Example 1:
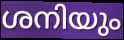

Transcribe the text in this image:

ശനിയും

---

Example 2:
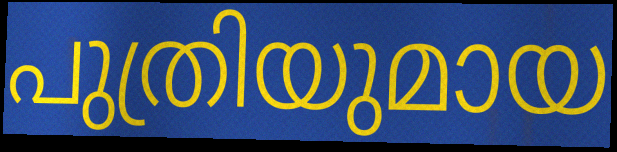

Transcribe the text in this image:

പുത്രിയുമായ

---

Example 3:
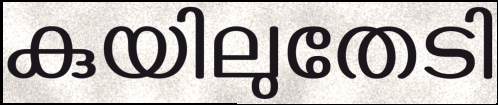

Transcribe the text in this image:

കുയിലുതേടി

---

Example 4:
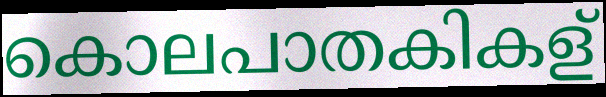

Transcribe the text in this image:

കൊലപാതകികള്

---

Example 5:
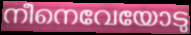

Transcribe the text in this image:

നീനെവേയോടു